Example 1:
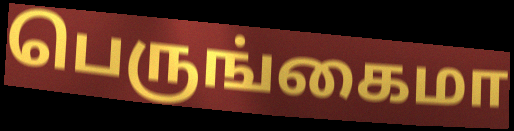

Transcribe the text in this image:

பெருங்கைமா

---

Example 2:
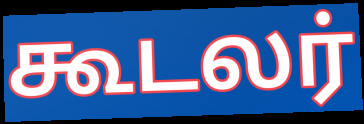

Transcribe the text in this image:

கூடலர்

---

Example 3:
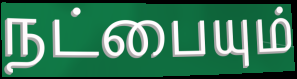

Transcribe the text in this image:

நட்பையும்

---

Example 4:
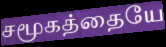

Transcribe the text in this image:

சமூகத்தையே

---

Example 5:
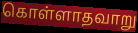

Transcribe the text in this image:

கொள்ளாதவாறு